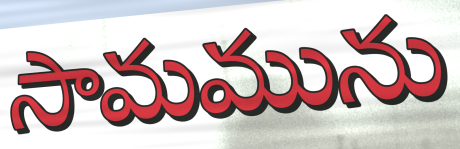
సామమును